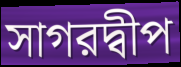
সাগরদ্বীপ